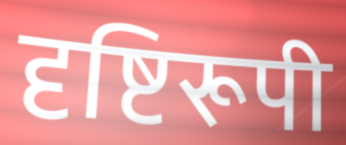
दृष्टिरूपी